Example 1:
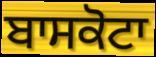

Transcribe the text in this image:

ਬਾਸਕੋਟਾ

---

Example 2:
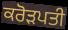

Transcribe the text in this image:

ਕਰੋੜਪਤੀ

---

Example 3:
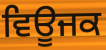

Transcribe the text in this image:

ਵਿਊਜਕ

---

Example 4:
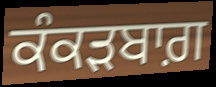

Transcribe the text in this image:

ਕੰਕੜਬਾਗ਼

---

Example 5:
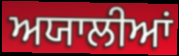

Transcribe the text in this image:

ਅਯਾਲੀਆਂ